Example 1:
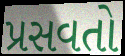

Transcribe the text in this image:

પ્રસવતો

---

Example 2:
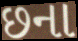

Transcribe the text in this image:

છના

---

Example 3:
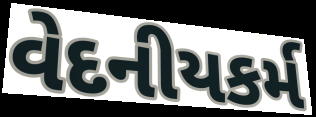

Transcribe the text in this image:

વેદનીયકર્મ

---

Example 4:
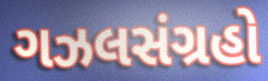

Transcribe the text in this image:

ગઝલસંગ્રહો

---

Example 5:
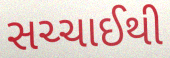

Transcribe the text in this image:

સચ્ચાઈથી